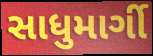
સાધુમાર્ગી